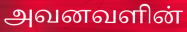
அவனவளின்